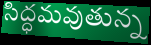
సిద్ధమవుతున్న